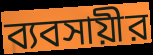
ব্যবসায়ীর